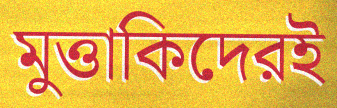
মুত্তাকিদেরই